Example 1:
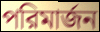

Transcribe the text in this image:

পরিমার্জন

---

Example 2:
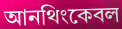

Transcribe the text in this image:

আনথিংকেবল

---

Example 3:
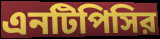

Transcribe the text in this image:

এনটিপিসির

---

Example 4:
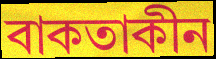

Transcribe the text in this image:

বাকতাকীন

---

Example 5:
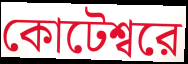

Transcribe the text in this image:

কোটেশ্বরে